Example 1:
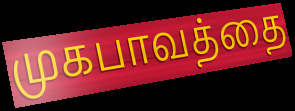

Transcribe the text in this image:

முகபாவத்தை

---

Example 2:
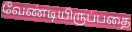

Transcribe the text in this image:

வேண்டியிருப்பதை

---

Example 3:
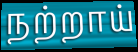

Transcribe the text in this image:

நற்றாய்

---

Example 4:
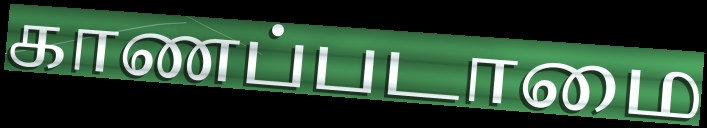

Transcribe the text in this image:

காணப்படாமை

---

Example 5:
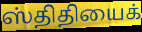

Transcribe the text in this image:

ஸ்திதியைக்